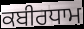
ਕਬੀਰਧਾਮ